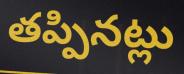
తప్పినట్లు